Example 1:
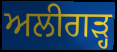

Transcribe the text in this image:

ਅਲੀਗੜ੍ਹ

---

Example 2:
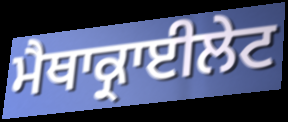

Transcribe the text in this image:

ਮੈਥਾਕ੍ਰਾਈਲੇਟ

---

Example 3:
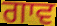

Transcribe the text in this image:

ਗਾਵ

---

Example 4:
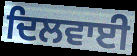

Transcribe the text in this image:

ਦਿਲਵਾਈ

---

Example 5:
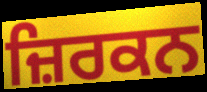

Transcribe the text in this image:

ਜ਼ਿਰਕਨ